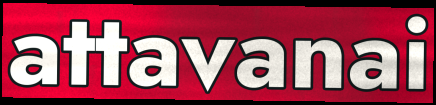
attavanai